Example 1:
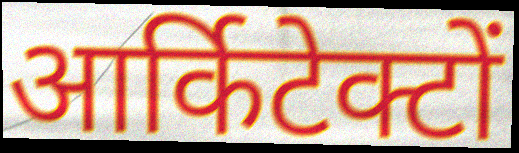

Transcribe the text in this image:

आर्किटेक्टों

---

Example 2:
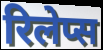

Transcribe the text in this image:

रिलेप्स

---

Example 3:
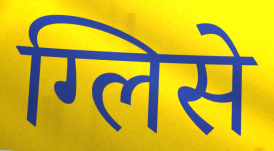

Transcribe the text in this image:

ग्लिसे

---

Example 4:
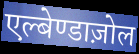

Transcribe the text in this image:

एल्बेण्डाज़ोल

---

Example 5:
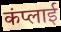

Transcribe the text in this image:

कंप्लाई